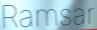
Ramsar